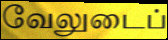
வேலுடைப்